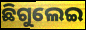
ଛିଗୁଲେଇ